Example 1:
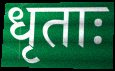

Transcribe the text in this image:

धृताः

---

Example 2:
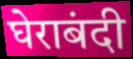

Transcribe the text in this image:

घेराबंदी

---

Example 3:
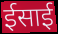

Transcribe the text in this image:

ईसाई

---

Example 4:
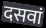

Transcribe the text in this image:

दसवां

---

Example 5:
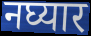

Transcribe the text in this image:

नघ्यार